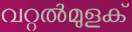
വറ്റൽമുളക്